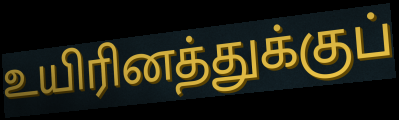
உயிரினத்துக்குப்